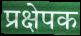
प्रक्षेपक